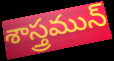
శాస్త్రమున్